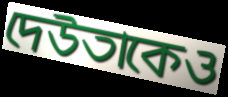
দেউতাকেও